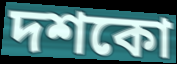
দশকো